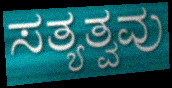
ಸತ್ಯತ್ವವು